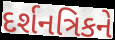
દર્શનત્રિકને